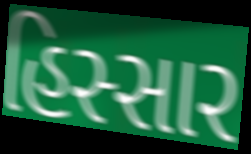
હિસ્સાર